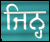
ਜਿਨ੍ਹ